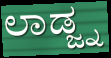
ಲಾಡ್ಜ್ನ